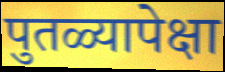
पुतळ्यापेक्षा